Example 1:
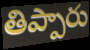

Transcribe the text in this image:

తిప్పారు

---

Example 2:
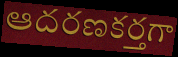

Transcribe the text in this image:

ఆదరణకర్తగా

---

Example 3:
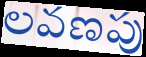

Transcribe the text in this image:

లవణపు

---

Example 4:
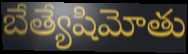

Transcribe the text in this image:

బేత్యేషిమోతు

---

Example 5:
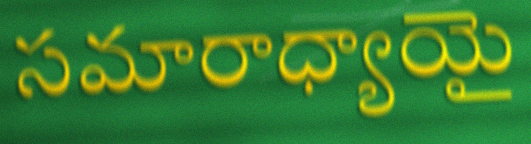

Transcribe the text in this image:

సమారాధ్యాయై